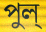
পুল্